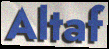
Altaf